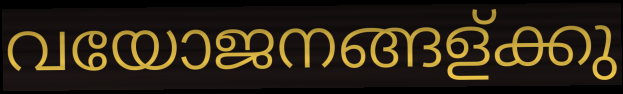
വയോജനങ്ങള്ക്കു